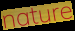
nature